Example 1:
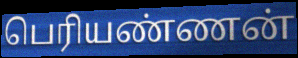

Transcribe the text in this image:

பெரியண்ணன்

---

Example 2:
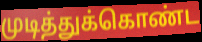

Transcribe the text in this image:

முடித்துக்கொண்ட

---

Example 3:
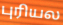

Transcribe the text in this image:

புரியல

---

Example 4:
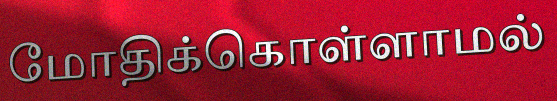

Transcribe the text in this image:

மோதிக்கொள்ளாமல்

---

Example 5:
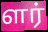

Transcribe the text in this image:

ளர்